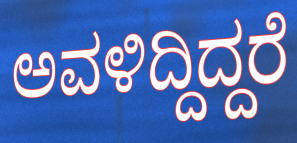
ಅವಳಿದ್ದಿದ್ದರೆ